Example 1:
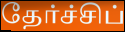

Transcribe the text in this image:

தேர்ச்சிப்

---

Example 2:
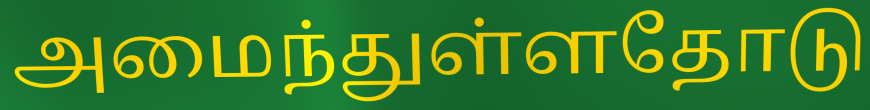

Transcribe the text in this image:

அமைந்துள்ளதோடு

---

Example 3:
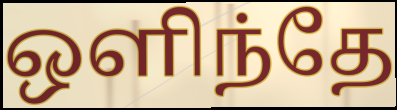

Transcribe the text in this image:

ஒளிந்தே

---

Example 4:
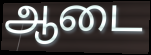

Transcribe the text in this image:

ஆடை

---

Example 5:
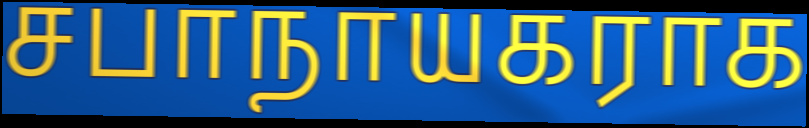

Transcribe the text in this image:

சபாநாயகராக